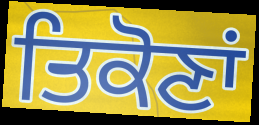
ਤਿਕੋਣਾਂ